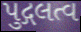
પુદ્ગલત્વ